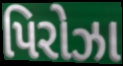
પિરોઝા